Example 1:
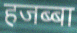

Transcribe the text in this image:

हजब्बा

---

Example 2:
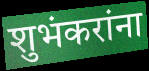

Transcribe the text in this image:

शुभंकरांना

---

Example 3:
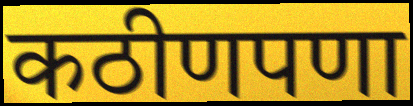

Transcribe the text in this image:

कठीणपणा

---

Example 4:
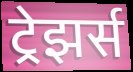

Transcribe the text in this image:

ट्रेझर्स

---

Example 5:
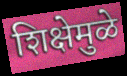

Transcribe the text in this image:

शिक्षेमुळे